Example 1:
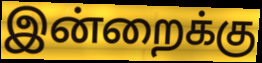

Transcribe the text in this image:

இன்றைக்கு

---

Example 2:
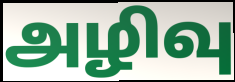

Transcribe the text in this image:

அழிவு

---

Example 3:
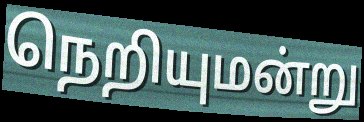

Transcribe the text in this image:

நெறியுமன்று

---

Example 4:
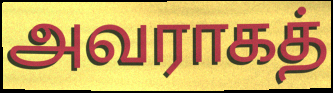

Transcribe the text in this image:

அவராகத்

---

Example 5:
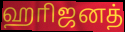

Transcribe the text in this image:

ஹரிஜனத்